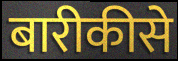
बारीकीसे